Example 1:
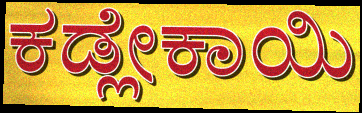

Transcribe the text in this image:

ಕಡ್ಲೇಕಾಯಿ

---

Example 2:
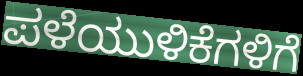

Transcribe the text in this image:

ಪಳೆಯುಳಿಕೆಗಳಿಗೆ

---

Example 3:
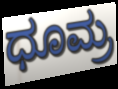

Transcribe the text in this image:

ಧೂಮ್ರ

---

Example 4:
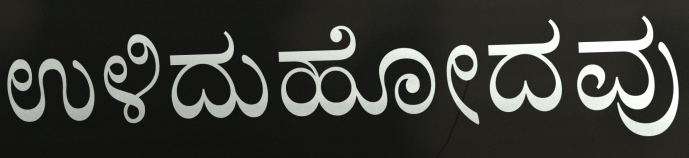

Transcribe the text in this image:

ಉಳಿದುಹೋದವು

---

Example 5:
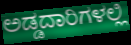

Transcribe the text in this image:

ಅಡ್ಡದಾರಿಗಳಲ್ಲಿ